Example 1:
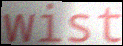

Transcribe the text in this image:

wist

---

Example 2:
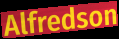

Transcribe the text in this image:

Alfredson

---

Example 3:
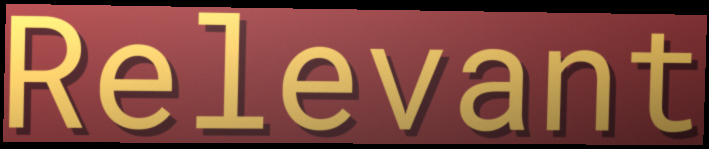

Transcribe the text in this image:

Relevant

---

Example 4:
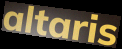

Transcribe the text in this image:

altaris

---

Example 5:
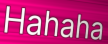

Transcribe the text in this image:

Hahaha